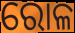
ରୋଳ